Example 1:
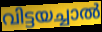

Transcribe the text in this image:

വിട്ടയച്ചാൽ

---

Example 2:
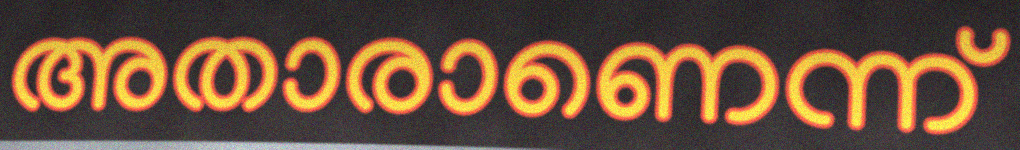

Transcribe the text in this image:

അതാരാണെന്ന്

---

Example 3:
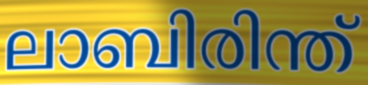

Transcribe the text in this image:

ലാബിരിന്ത്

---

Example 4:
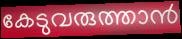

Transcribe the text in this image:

കേടുവരുത്താൻ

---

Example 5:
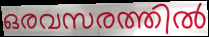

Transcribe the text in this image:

ഒരവസരത്തിൽ